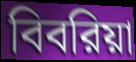
বিবরিয়া